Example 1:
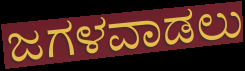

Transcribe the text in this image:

ಜಗಳವಾಡಲು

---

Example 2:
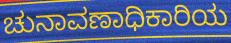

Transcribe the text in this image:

ಚುನಾವಣಾಧಿಕಾರಿಯ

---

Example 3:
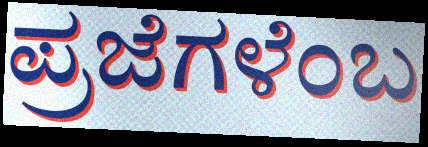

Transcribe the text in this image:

ಪ್ರಜೆಗಳೆಂಬ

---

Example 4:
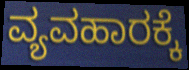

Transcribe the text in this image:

ವ್ಯವಹಾರಕ್ಕೆ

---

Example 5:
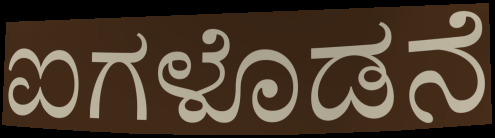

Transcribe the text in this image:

ಐಗಳೊಡನೆ